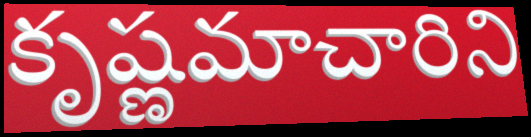
కృష్ణమాచారిని